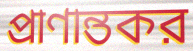
প্রাণান্তকর